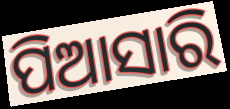
ପିଆସାରି